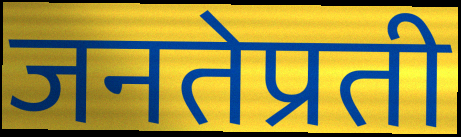
जनतेप्रती